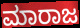
ಮಾರಾಜ